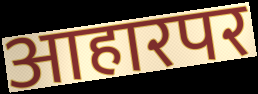
आहारपर